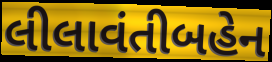
લીલાવંતીબહેન